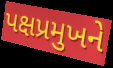
પક્ષપ્રમુખને